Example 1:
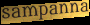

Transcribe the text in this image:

sampanna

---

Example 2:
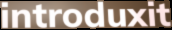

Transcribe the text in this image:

introduxit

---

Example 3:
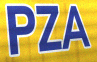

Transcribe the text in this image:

PZA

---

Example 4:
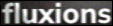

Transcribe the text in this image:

fluxions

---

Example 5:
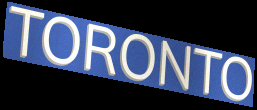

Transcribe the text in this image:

TORONTO